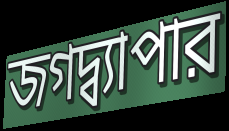
জগদ্ব্যাপার